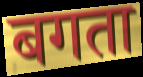
बगता